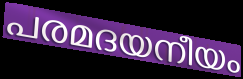
പരമദയനീയം